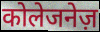
कोलेजनेज़